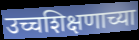
उच्चशिक्षणाच्या